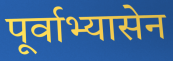
पूर्वाभ्यासेन